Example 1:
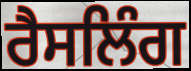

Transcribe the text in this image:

ਰੈਸਲਿੰਗ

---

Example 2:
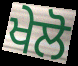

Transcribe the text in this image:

ਖੇਲੋ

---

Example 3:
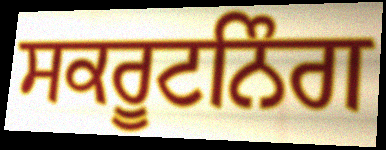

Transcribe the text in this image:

ਸਕਰੂਟਨਿੰਗ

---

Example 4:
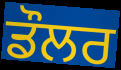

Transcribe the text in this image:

ਡੌਲਰ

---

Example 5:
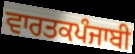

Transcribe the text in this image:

ਵਾਰਤਕਪੰਜਾਬੀ